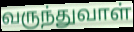
வருந்துவாள்